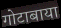
गोटाबाया